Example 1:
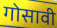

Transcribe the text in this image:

गोसावी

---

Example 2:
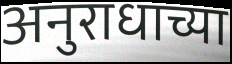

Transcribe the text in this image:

अनुराधाच्या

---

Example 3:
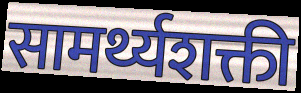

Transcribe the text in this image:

सामर्थ्यशक्ती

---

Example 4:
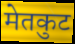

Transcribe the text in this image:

मेतकुट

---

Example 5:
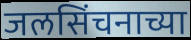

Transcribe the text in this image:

जलसिंचनाच्या